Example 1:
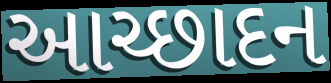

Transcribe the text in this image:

આચ્છાદન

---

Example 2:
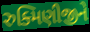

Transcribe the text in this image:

રુક્મિણીજીને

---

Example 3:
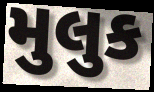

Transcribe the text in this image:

મુલુક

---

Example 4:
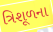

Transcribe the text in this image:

ત્રિશૂળના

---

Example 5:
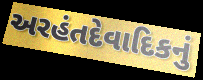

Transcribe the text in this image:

અરહંતદેવાદિકનું